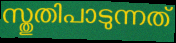
സ്തുതിപാടുന്നത്